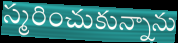
స్మరించుకున్నాను